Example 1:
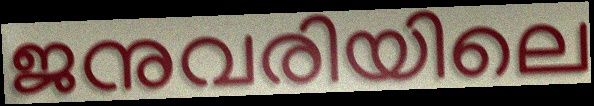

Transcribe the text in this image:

ജനുവരിയിലെ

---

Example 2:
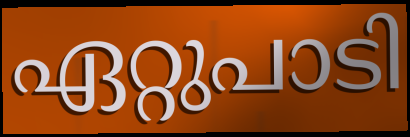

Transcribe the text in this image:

ഏറ്റുപാടി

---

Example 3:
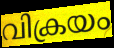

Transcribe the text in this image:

വിക്രയം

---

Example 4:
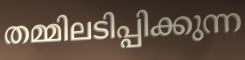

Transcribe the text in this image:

തമ്മിലടിപ്പിക്കുന്ന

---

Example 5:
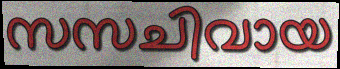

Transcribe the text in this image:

സസചിവായ